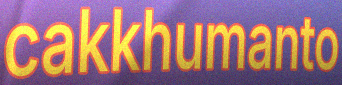
cakkhumanto